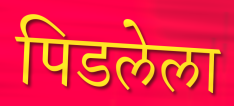
पिडलेला